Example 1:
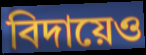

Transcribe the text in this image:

বিদায়েও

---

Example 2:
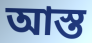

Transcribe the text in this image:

আস্ত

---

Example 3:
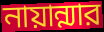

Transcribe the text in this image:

নায়ান্মার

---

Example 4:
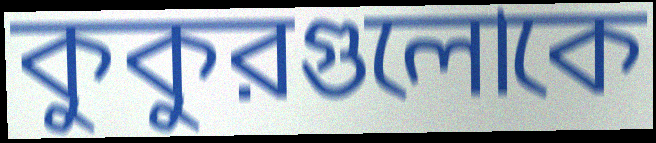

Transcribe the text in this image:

কুকুরগুলোকে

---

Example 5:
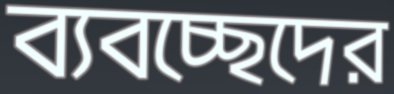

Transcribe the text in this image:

ব্যবচ্ছেদের